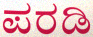
ಪರಡಿ